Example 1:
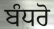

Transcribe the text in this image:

ਬੰਧਰੋ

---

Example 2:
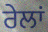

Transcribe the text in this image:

ਰੇਲਾਂ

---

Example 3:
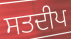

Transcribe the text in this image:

ਸਤਦੀਪ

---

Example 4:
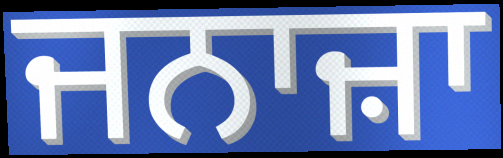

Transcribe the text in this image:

ਜਨਾਜ਼ਾ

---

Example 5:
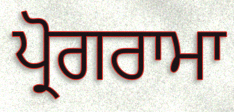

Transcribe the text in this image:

ਪ੍ਰੋਗਰਾਮਾ